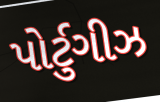
પોર્ટુગીઝ